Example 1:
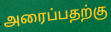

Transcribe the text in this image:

அரைப்பதற்கு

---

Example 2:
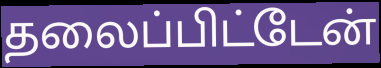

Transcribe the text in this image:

தலைப்பிட்டேன்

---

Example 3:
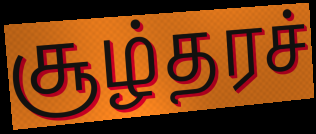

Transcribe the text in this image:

சூழ்தரச்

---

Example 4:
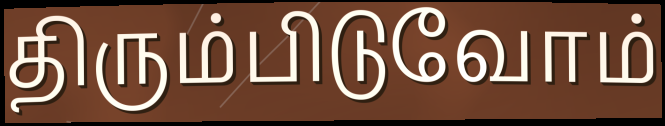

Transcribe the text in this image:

திரும்பிடுவோம்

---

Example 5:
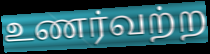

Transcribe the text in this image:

உணர்வற்ற